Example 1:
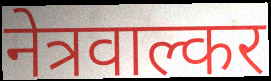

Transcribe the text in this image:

नेत्रवाल्कर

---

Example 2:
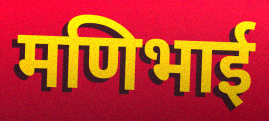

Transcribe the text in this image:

मणिभाई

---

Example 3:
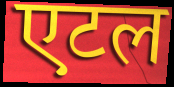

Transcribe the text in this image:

एटल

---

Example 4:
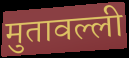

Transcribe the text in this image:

मुतावल्ली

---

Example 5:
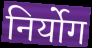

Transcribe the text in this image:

निर्योग